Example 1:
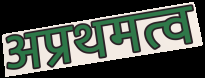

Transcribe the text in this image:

अप्रथमत्व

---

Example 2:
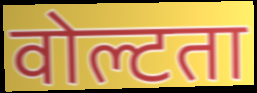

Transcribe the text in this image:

वोल्टता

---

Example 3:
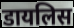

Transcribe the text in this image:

डायलिस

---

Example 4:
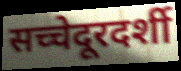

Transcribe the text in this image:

सच्चेदूरदर्शी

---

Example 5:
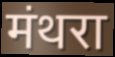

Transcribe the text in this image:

मंथरा